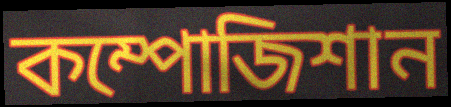
কম্পোজিশান